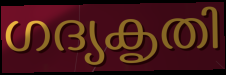
ഗദ്യകൃതി